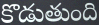
కొడుతుంది